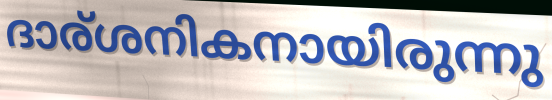
ദാര്ശനികനായിരുന്നു